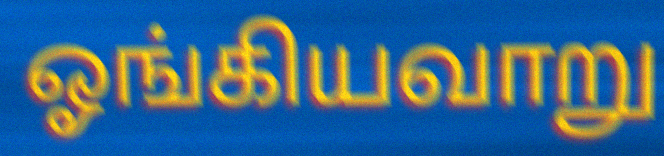
ஓங்கியவாறு